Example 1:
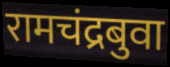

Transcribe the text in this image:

रामचंद्रबुवा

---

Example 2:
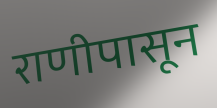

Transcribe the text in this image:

राणीपासून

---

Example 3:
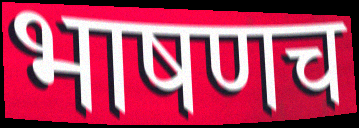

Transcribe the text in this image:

भाषणच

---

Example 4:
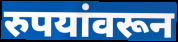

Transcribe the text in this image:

रुपयांवरून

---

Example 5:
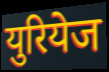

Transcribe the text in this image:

युरियेज